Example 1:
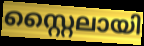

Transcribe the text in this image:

സ്റ്റൈലായി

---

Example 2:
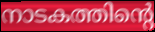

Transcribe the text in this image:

നാടകത്തിന്റെ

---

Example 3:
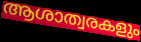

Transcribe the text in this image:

ആശാത്വരകളും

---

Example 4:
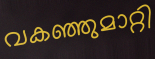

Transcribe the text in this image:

വകഞ്ഞുമാറ്റി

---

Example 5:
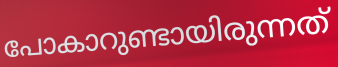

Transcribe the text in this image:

പോകാറുണ്ടായിരുന്നത്